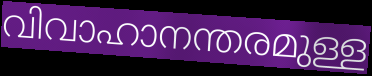
വിവാഹാനന്തരമുള്ള